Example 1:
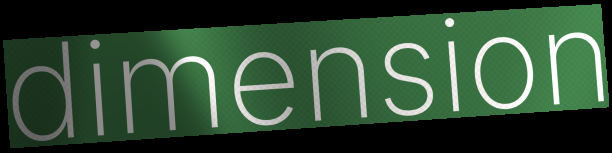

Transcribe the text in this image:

dimension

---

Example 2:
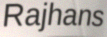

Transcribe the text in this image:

Rajhans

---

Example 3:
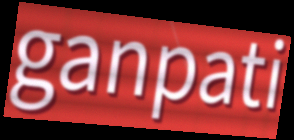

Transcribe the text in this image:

ganpati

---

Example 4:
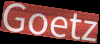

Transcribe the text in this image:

Goetz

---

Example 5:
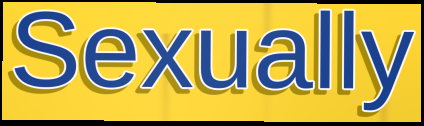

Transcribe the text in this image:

Sexually